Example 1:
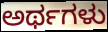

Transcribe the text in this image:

ಅರ್ಥಗಳು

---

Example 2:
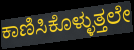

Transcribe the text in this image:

ಕಾಣಿಸಿಕೊಳ್ಳುತ್ತಲೇ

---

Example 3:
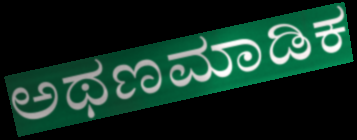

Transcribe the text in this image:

ಅಥಣಮಾಡಿಕ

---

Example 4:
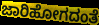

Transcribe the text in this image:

ಜಾರಿಹೋಗದಂತೆ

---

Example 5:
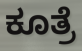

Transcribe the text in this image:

ಕೂತ್ರೆ